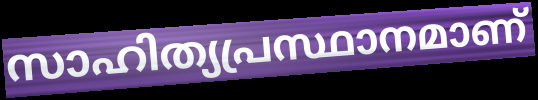
സാഹിത്യപ്രസ്ഥാനമാണ്